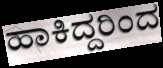
ಹಾಕಿದ್ದರಿಂದ